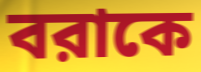
বরাকে